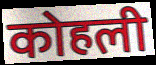
कोहली